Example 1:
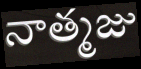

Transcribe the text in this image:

నాత్మజు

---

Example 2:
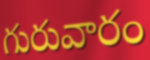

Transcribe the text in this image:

గురువారం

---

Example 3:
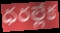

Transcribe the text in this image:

ధరల్లేక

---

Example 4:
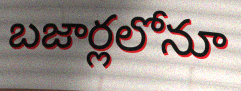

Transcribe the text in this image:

బజార్లలోనూ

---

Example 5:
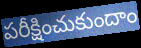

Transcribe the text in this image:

పరీక్షించుకుందాం